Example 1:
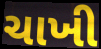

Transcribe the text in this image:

ચાખી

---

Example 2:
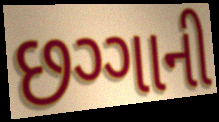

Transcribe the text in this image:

છગ્ગાની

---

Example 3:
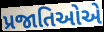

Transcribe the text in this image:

પ્રજાતિઓએ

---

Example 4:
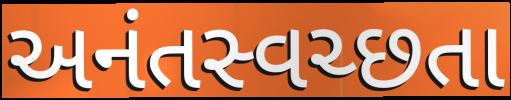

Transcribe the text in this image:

અનંતસ્વચ્છતા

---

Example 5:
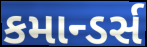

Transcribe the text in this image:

કમાન્ડર્સ